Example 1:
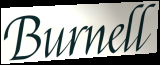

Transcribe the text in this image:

Burnell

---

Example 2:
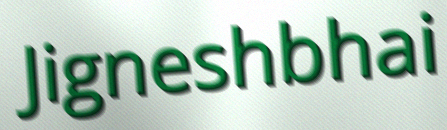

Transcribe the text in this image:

Jigneshbhai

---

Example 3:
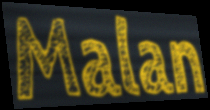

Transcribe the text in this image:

Malan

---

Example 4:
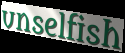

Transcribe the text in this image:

unselfish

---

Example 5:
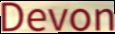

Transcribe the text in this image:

Devon